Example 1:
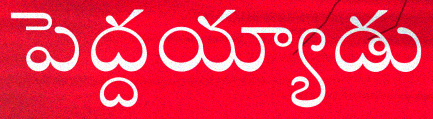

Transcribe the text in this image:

పెద్దయ్యాడు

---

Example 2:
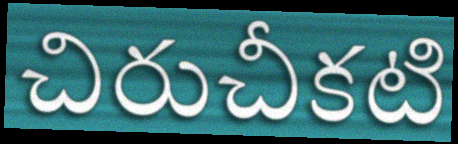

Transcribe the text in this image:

చిరుచీకటి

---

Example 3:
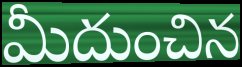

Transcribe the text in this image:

మీదుంచిన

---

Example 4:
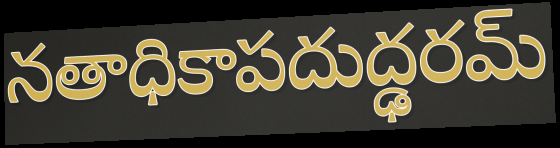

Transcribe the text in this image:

నతాధికాపదుద్ఢరమ్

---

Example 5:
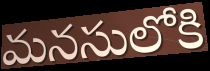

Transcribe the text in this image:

మనసులోకి